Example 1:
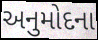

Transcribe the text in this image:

અનુમોદના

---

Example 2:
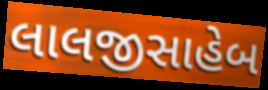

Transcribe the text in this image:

લાલજીસાહેબ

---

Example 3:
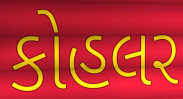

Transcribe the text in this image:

કોહલર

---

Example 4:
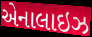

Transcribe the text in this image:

એનાલાઇઝ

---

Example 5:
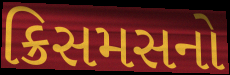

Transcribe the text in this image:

ક્રિસમસનો